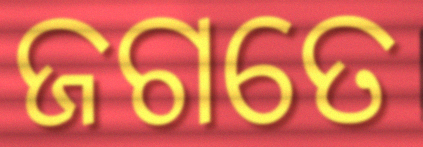
ଜଗତେ